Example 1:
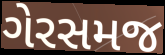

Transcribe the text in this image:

ગેરસમજ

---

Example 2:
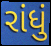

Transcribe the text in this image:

રાંધું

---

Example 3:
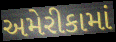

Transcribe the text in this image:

અમેરીકામાં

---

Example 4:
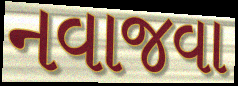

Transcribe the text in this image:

નવાજવા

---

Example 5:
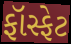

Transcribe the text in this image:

ફૉસ્ફેટ